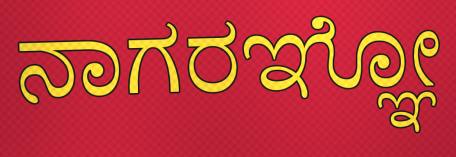
ನಾಗರಞ್ಞೋ